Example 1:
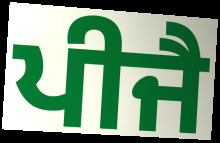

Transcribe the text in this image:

ਪੀਜੈ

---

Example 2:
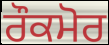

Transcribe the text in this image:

ਰੌਕਮੋਰ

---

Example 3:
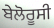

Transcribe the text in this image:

ਬੇਲੋਰੂਸੀ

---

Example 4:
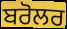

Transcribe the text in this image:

ਬਰੋਲਰ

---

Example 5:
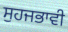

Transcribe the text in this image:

ਸੁਹਜਭਾਵੀ